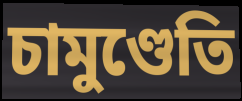
চামুণ্ডেতি